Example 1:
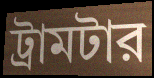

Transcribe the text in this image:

ট্রামটার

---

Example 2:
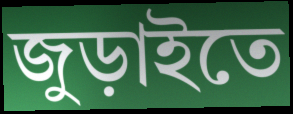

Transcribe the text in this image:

জুড়াইতে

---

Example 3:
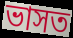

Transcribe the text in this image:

ভাসত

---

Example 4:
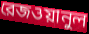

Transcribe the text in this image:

রেজওয়ানুল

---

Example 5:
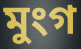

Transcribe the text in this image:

মুংগ